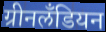
ग्रीनलॅंडियन